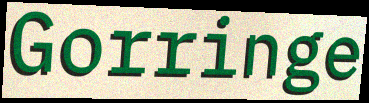
Gorringe